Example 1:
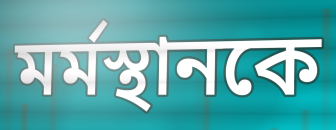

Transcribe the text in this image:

মর্মস্থানকে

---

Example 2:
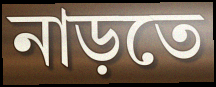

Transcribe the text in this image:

নাড়তে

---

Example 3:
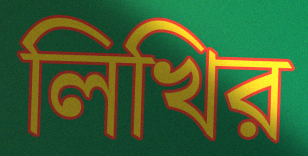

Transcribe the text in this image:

লিখির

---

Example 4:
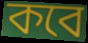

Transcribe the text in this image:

কবে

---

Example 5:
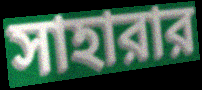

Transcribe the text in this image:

সাহারার